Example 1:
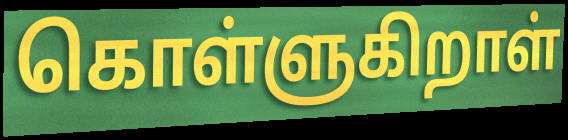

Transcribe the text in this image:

கொள்ளுகிறாள்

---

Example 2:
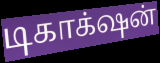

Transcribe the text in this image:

டிகாக்‌ஷன்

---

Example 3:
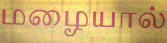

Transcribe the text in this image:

மழையால்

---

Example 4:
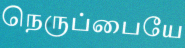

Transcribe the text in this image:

நெருப்பையே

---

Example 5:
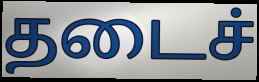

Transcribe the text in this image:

தடைச்